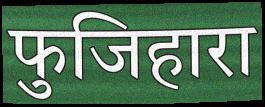
फुजिहारा